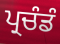
ਪ੍ਰਚੰਡੰ